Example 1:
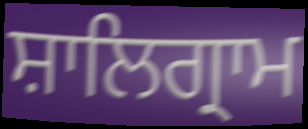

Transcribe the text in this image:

ਸ਼ਾਲਿਗ੍ਰਾਮ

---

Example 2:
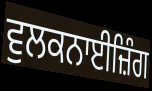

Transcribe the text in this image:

ਵੁਲਕਨਾਈਜ਼ਿੰਗ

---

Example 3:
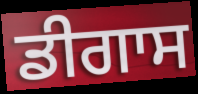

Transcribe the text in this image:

ਡੀਗਾਸ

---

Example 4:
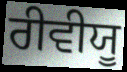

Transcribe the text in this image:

ਰੀਵੀਯੂ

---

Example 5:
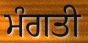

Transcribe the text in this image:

ਮੰਗਤੀ